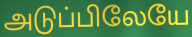
அடுப்பிலேயே